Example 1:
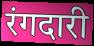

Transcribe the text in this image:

रंगदारी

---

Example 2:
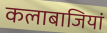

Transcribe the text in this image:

कलाबाजियां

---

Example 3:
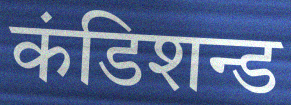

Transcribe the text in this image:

कंडिशन्ड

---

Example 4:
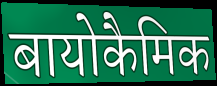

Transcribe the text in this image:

बायोकैमिक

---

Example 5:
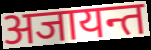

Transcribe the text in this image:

अजायन्त